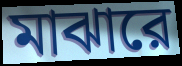
মাঝারে